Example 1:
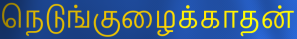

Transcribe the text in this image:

நெடுங்குழைக்காதன்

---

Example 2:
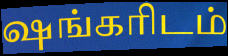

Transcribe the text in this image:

ஷங்கரிடம்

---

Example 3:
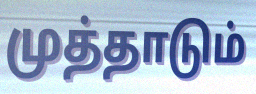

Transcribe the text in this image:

முத்தாடும்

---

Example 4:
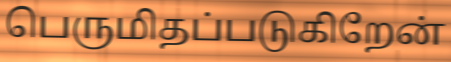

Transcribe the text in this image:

பெருமிதப்படுகிறேன்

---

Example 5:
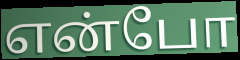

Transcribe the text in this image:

என்போ